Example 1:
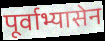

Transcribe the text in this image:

पूर्वाभ्यासेन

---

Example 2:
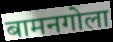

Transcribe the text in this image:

बामनगोला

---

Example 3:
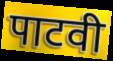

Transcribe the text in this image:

पाटवी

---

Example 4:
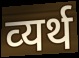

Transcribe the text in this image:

व्‍यर्थ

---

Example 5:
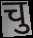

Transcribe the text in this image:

चु